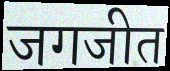
जगजीत